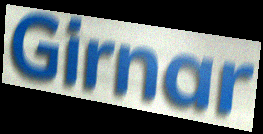
Girnar